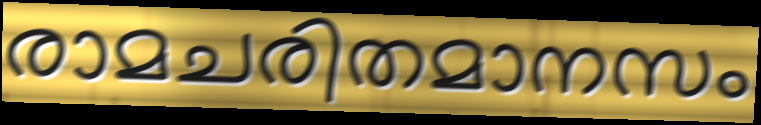
രാമചരിതമാനസം